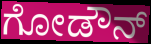
ಗೋಡೌನ್